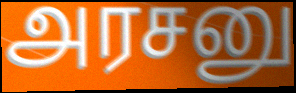
அரசனு